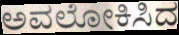
ಅವಲೋಕಿಸಿದ